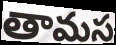
తామస